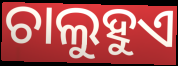
ଚାଲୁହୁଏ